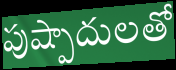
పుష్పాదులతో